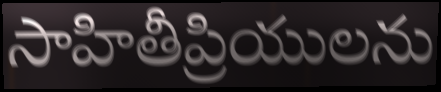
సాహితీప్రియులను